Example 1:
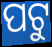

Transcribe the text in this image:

ପଟୁ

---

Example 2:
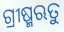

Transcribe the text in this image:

ଗ୍ରୀଷ୍ମଋତୁ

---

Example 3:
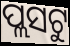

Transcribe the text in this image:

ପ୍ଲସଟୁ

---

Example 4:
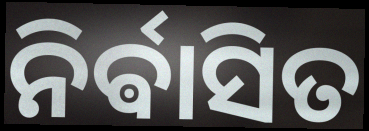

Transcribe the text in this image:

ନିର୍ଵାସିତ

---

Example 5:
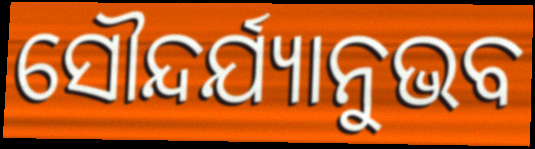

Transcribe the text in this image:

ସୌନ୍ଦର୍ଯ୍ୟାନୁଭବ